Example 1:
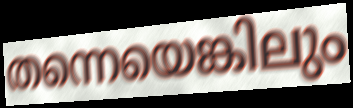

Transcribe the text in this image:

തന്നെയെങ്കിലും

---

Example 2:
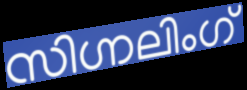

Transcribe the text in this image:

സിഗ്നലിംഗ്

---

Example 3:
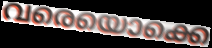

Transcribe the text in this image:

വരെയൊക്കെ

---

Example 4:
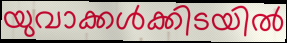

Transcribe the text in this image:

യുവാക്കൾക്കിടയിൽ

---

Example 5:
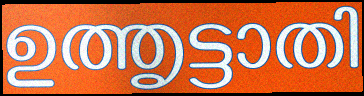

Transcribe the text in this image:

ഉത്തൃട്ടാതി